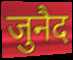
जुनैद